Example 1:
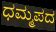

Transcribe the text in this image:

ಧಮ್ಮಪದ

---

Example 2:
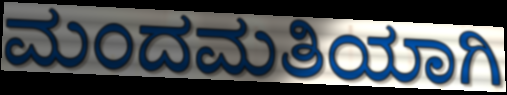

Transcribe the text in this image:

ಮಂದಮತಿಯಾಗಿ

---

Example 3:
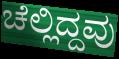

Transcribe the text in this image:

ಚೆಲ್ಲಿದ್ದವು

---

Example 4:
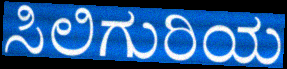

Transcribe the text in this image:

ಸಿಲಿಗುರಿಯ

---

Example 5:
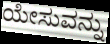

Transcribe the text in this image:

ಯೇಸುವನ್ನು